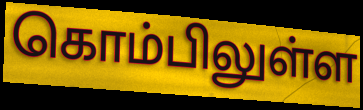
கொம்பிலுள்ள